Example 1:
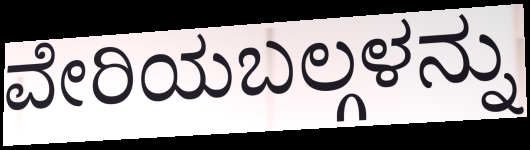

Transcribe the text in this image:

ವೇರಿಯಬಲ್ಗಳನ್ನು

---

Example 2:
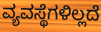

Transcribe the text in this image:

ವ್ಯವಸ್ಥೆಗಳಿಲ್ಲದೆ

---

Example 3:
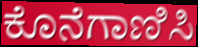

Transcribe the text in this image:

ಕೊನೆಗಾಣಿಸಿ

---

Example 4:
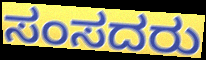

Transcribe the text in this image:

ಸಂಸದರು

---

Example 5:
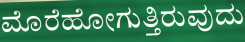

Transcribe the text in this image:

ಮೊರೆಹೋಗುತ್ತಿರುವುದು